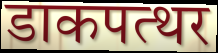
डाकपत्थर